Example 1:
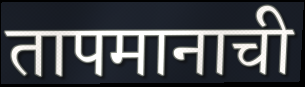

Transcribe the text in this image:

तापमानाची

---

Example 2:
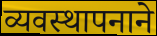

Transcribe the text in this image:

व्यवस्थापनाने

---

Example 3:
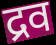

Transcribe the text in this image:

द्रव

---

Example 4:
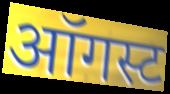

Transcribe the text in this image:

ऑगस्ट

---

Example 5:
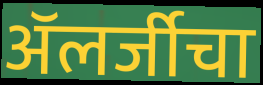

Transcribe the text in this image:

ॲलर्जीचा